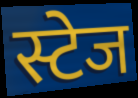
स्टेज